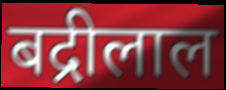
बद्रीलाल